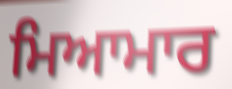
ਮਿਆਮਾਰ